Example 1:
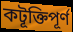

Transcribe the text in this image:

কটূক্তিপূর্ণ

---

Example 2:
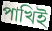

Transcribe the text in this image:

পাখিই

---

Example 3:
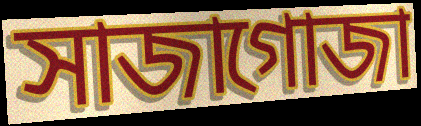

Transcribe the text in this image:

সাজাগোজা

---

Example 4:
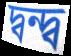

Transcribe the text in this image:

দ্বন্দ্ব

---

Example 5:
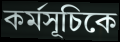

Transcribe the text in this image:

কর্মসূচিকে